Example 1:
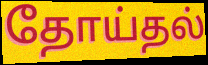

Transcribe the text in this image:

தோய்தல்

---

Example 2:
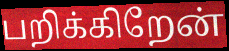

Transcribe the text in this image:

பறிக்கிறேன்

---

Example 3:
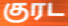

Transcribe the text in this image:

குரட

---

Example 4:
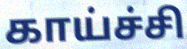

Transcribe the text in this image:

காய்ச்சி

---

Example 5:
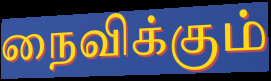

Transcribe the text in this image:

நைவிக்கும்